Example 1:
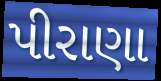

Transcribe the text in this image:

પીરાણા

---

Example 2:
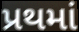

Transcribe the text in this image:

પ્રથમાં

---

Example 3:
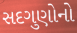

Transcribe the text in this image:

સદગુણોનો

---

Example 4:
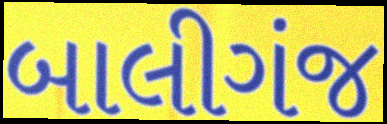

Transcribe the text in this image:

બાલીગંજ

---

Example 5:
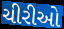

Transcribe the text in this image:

ચીરીઓ